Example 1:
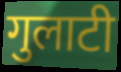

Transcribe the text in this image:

गुलाटी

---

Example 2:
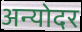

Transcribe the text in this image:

अन्योदर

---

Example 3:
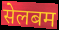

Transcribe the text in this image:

सेलबम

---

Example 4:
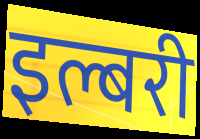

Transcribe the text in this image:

इल्बरी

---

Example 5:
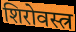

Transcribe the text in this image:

शिरोवस्त्र